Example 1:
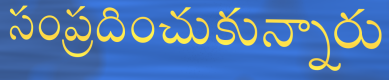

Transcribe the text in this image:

సంప్రదించుకున్నారు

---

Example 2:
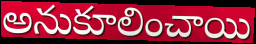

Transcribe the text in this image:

అనుకూలించాయి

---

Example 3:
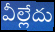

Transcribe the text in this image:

వీల్లేదు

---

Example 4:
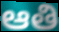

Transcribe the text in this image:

ఆతి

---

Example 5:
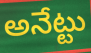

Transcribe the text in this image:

అనేట్టు